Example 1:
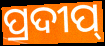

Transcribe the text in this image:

ପ୍ରଦୀପ୍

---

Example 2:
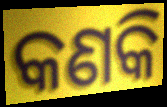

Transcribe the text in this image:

କଣକି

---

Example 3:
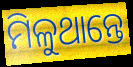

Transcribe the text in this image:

ମିଳୁଥାନ୍ତେ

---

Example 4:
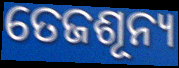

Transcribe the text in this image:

ତେଜଶୂନ୍ୟ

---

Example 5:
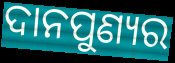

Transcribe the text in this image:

ଦାନପୁଣ୍ୟର